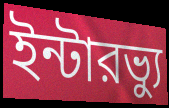
ইন্টারভ্যু